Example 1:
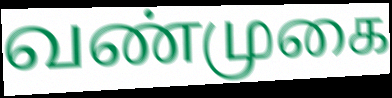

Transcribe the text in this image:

வண்முகை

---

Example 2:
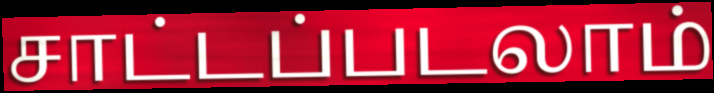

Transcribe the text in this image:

சாட்டப்படலாம்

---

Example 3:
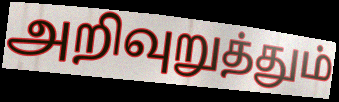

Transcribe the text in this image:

அறிவுறுத்தும்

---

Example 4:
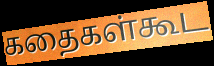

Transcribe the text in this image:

கதைகள்கூட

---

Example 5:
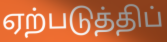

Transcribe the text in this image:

ஏற்படுத்திப்